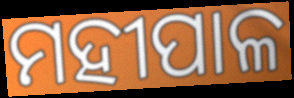
ମହୀପାଳ